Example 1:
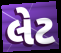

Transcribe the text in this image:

લેટ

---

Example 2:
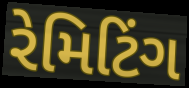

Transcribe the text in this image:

રેમિટિંગ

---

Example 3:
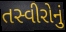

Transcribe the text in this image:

તસ્વીરોનું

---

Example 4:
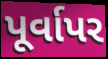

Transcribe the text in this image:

પૂર્વાપર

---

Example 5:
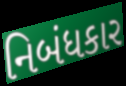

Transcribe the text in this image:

નિબંધકાર